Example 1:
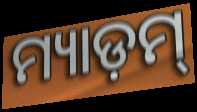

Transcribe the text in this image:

ମ୍ୟାଡ଼ମ୍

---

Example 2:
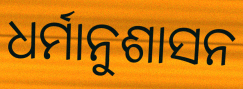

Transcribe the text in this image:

ଧର୍ମାନୁଶାସନ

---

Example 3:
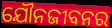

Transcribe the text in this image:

ଯୌନଜୀବନର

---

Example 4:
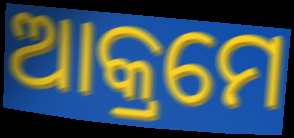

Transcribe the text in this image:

ଆକ୍ରମେ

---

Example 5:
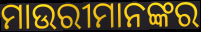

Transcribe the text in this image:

ମାଉରୀମାନଙ୍କର